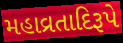
મહાવ્રતાદિરૂપે